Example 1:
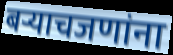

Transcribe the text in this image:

बऱ्याचजणांना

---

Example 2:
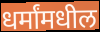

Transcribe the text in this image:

धर्मांमधील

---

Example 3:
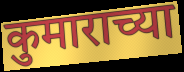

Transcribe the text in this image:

कुमाराच्या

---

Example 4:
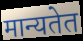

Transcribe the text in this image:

मान्यतेत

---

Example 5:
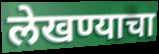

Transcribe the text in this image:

लेखण्याचा